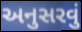
અનુસરવું